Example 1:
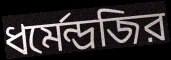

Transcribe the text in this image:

ধর্মেন্দ্রজির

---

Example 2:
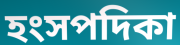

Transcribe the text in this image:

হংসপদিকা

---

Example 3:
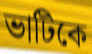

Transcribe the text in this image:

ভাটিকে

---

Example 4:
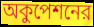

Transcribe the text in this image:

অকুপেশনের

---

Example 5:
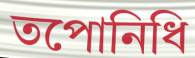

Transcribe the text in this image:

তপোনিধি